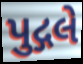
પુદ્ગલે